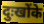
दुःखोंके